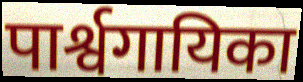
पार्श्वगायिका